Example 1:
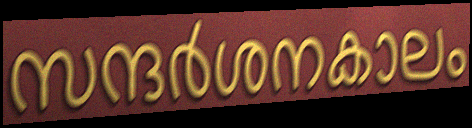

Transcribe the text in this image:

സന്ദർശനകാലം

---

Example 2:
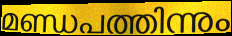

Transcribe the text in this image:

മണ്ഡപത്തിന്നും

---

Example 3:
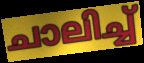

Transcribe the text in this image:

ചാലിച്ച്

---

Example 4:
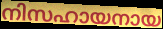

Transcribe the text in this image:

നിസഹായനായ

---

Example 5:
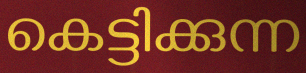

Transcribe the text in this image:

കെട്ടിക്കുന്ന